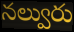
నల్వురు